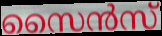
സൈൻസ്